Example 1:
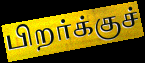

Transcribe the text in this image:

பிறர்க்குச்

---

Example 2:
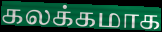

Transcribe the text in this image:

கலக்கமாக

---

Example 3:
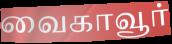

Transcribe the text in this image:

வைகாவூர்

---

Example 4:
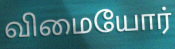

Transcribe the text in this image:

விமையோர்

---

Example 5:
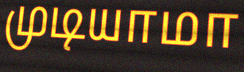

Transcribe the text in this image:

முடியாமா